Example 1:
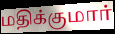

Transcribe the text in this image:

மதிக்குமார்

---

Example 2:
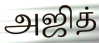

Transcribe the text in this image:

அஜித்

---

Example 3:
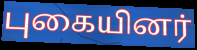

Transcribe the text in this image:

புகையினர்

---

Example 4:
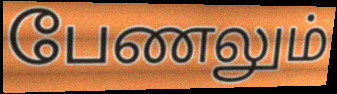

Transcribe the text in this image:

பேணலும்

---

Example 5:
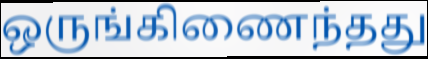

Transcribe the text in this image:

ஒருங்கிணைந்தது